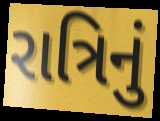
રાત્રિનું